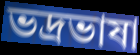
ভদ্রভাষা